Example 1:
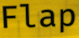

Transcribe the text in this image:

Flap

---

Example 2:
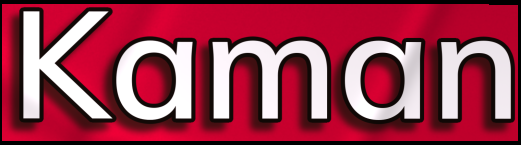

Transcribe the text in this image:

Kaman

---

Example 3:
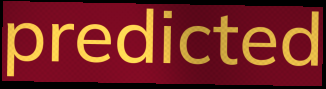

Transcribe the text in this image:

predicted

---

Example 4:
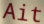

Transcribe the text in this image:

Ait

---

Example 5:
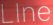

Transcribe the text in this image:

LIne